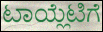
ಟಾಯ್ಲೆಟಿಗೆ